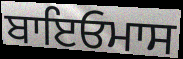
ਬਾਇਓਮਾਸ